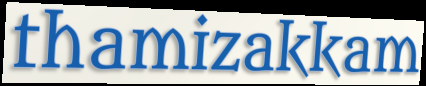
thamizakkam